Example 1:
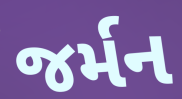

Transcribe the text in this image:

જર્મન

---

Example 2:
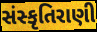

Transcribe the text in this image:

સંસ્કૃતિરાણી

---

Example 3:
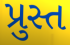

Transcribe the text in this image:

પ્રુસ્ત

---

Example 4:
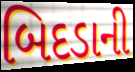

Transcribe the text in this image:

બિદડાની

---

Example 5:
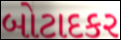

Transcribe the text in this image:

બોટાદકર